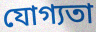
যোগ্যতা